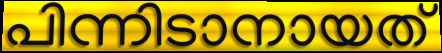
പിന്നിടാനായത്